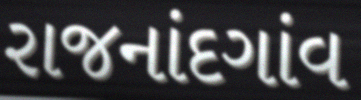
રાજનાંદગાંવ